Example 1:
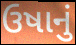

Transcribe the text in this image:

ઉષાનું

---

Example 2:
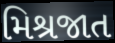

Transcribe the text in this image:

મિશ્રજાત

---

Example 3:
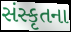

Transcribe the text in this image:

સંસ્‍કૃતના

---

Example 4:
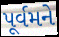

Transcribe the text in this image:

પૂર્વમને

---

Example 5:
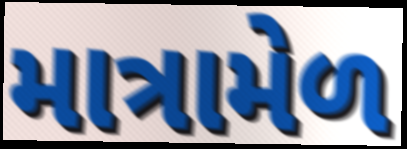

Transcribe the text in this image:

માત્રામેળ